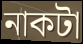
নাকটা